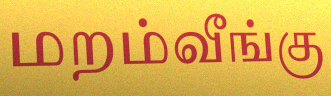
மறம்வீங்கு